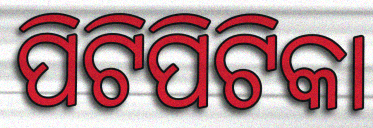
ପିଟିପିଟିକା